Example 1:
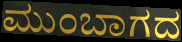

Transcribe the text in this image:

ಮುಂಬಾಗದ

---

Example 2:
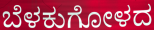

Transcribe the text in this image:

ಬೆಳಕುಗೋಳದ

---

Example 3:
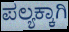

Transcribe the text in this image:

ಪಲ್ಯಕ್ಕಾಗಿ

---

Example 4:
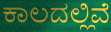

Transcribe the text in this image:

ಕಾಲದಲ್ಲಿವೆ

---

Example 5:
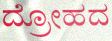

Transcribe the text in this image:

ದ್ರೋಹದ